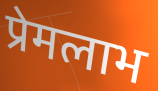
प्रेमलाभ